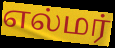
எல்மர்